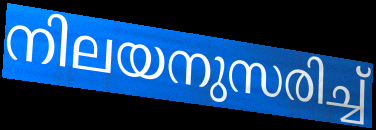
നിലയനുസരിച്ച്